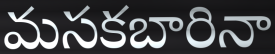
మసకబారినా